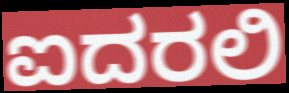
ಐದರಲಿ